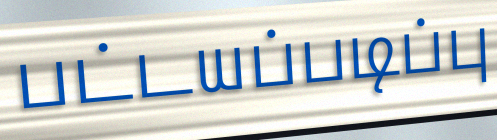
பட்டயப்படிப்பு